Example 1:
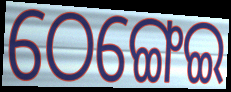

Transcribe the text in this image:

ଠେଙ୍ଗେଇ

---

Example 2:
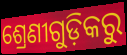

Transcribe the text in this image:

ଶ୍ରେଣୀଗୁଡ଼ିକରୁ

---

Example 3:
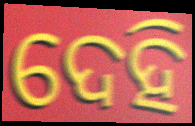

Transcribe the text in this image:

ଦେହି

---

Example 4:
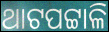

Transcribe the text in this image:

ଥାଟପଟ୍ଟାଳି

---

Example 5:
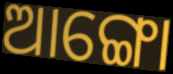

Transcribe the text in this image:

ଆଙ୍ଗୋ